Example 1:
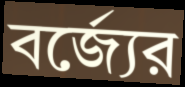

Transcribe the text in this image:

বর্জ্যের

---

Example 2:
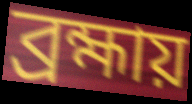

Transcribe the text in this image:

ব্রহ্মায়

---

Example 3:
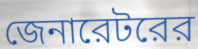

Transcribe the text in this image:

জেনারেটরের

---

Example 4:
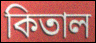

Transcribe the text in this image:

কিতাল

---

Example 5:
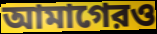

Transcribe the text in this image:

আমাগেরও